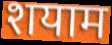
शयाम